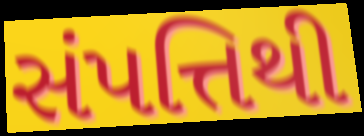
સંપત્તિથી